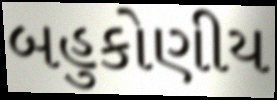
બહુકોણીય